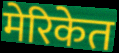
मेरिकेत